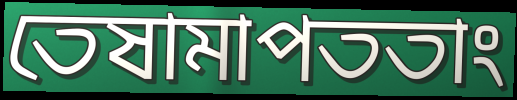
তেষামাপততাং